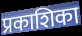
प्रकाशिका